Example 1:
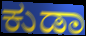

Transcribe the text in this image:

ಕುಡಾ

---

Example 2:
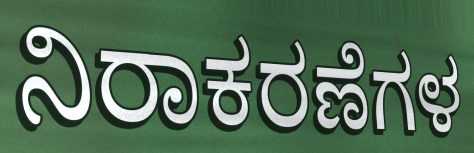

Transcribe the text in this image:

ನಿರಾಕರಣೆಗಳ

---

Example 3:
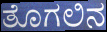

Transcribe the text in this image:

ತೊಗಲಿನ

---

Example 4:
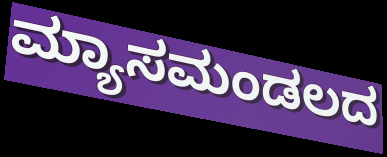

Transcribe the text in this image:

ಮ್ಯಾಸಮಂಡಲದ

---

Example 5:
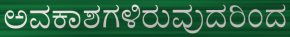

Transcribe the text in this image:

ಅವಕಾಶಗಳಿರುವುದರಿಂದ